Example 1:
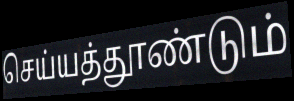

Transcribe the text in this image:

செய்யத்தூண்டும்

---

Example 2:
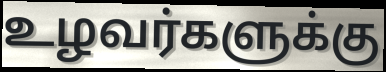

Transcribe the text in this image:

உழவர்களுக்கு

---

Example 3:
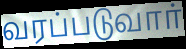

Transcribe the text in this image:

வரப்படுவார்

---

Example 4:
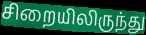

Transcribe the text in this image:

சிறையிலிருந்து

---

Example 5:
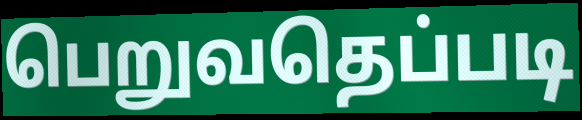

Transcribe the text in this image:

பெறுவதெப்படி